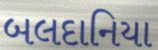
બલદાનિયા